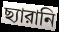
ছ্যারানি